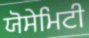
ਯੋਸੇਮਿਟੀ